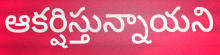
ఆకర్షిస్తున్నాయని